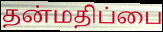
தன்மதிப்பை